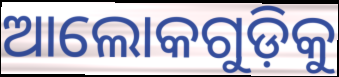
ଆଲୋକଗୁଡ଼ିକୁ